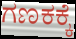
ಗಣಕಕ್ಕೆ